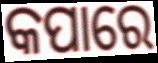
କପାରେ